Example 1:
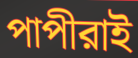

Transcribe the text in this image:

পাপীরাই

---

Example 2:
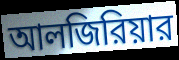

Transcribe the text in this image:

আলজিরিয়ার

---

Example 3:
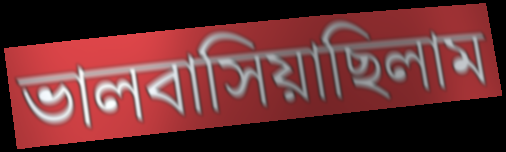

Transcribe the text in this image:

ভালবাসিয়াছিলাম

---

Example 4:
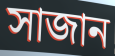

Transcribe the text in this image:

সাজান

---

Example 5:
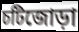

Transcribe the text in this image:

চটিজোড়া